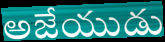
అజేయుడు